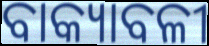
ବାକ୍ୟାବଳୀ